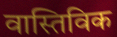
वास्तिविक